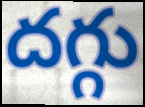
దగ్గు